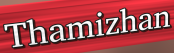
Thamizhan